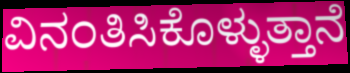
ವಿನಂತಿಸಿಕೊಳ್ಳುತ್ತಾನೆ